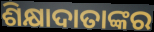
ଶିକ୍ଷାଦାତାଙ୍କର